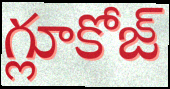
గ్లూకోజ్